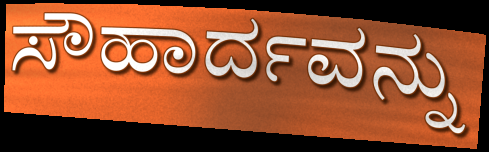
ಸೌಹಾರ್ದವನ್ನು